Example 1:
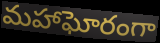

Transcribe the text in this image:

మహాఘోరంగా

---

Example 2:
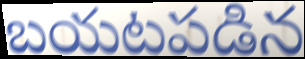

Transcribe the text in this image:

బయటపడిన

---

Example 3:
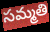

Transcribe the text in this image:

సమ్మతి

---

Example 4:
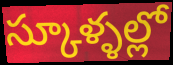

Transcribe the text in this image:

స్కూళ్ళల్లో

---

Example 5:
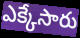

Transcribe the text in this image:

ఎక్కేసారు